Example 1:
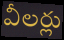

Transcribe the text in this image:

వీలర్లు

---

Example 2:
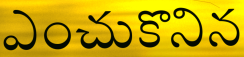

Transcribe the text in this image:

ఎంచుకొనిన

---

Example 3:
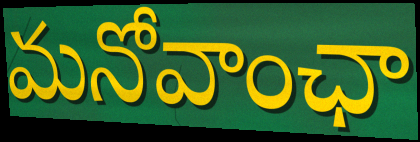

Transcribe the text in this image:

మనోవాంఛా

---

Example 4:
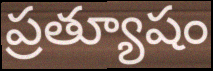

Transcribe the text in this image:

ప్రత్యూషం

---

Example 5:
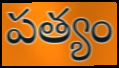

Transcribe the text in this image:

పత్యం